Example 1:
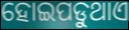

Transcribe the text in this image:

ହୋଇପଡୁଥାଏ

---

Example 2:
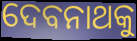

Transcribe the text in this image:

ଦେବନାଥକୁ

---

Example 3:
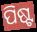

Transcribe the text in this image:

ପିଷ୍ଟ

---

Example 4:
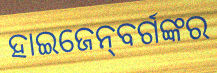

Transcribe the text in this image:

ହାଇଜେନ୍‌ବର୍ଗଙ୍କର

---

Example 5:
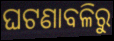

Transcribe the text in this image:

ଘଟଣାବଳିରୁ